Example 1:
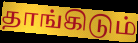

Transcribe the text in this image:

தாங்கிடும்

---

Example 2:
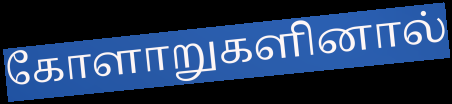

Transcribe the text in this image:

கோளாறுகளினால்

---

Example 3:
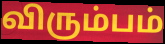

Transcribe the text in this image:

விரும்பம்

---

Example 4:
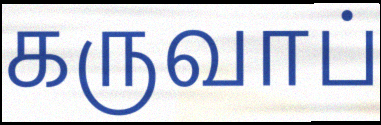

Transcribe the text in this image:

கருவாப்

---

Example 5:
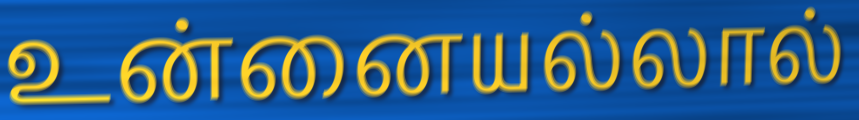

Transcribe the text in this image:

உன்னையல்லால்